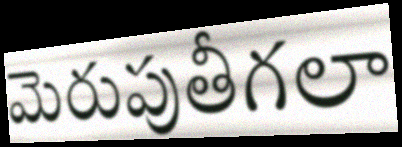
మెరుపుతీగలా